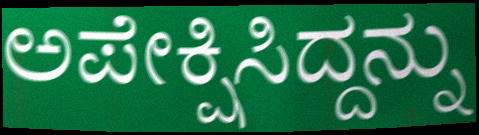
ಅಪೇಕ್ಷಿಸಿದ್ದನ್ನು